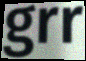
grr